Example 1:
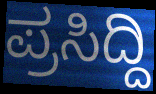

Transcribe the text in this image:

ಪ್ರಸಿದ್ದಿ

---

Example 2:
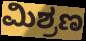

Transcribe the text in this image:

ಮಿಶ್ರಣ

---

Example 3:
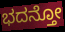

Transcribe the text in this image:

ಭದನ್ತೋ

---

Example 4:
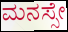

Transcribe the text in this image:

ಮನಸ್ಸೇ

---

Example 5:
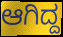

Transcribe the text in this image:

ಆಗಿದ್ದ